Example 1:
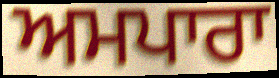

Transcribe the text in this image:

ਅਮਪਾਰਾ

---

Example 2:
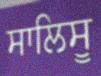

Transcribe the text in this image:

ਸਾਲਿਸੂ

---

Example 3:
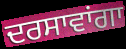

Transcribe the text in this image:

ਦਰਸਾਵਾਂਗਾ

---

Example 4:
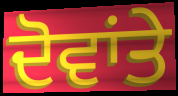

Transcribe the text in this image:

ਦੋਵਾਂਤੇ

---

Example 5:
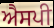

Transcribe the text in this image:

ਐਸਪੀ